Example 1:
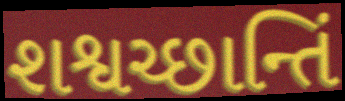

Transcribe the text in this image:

શશ્વચ્છાન્તિં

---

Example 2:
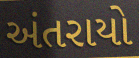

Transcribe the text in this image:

અંતરાયો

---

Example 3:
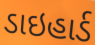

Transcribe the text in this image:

ડાઇહાર્ડ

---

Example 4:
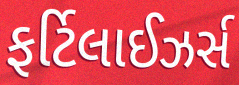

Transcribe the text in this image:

ફર્ટિલાઈઝર્સ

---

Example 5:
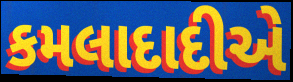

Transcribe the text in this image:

કમલાદાદીએ